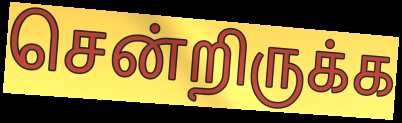
சென்றிருக்க